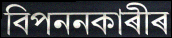
বিপননকাৰীৰ